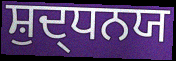
ਸ਼ੁਦ੍ਧਨਯ